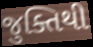
જુક્તિથી